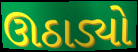
ઊઠાડ્યો